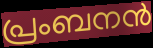
പ്രംബനൻ